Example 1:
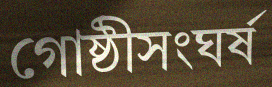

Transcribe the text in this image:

গোষ্ঠীসংঘৰ্ষ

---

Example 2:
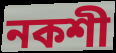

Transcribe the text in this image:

নকশী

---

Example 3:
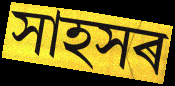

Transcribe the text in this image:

সাহসৰ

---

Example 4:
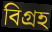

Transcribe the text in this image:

বিগ্ৰহ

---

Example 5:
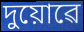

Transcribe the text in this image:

দুয়োৱে